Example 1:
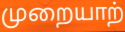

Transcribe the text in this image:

முறையாற்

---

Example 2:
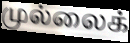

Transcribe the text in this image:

முல்லைக்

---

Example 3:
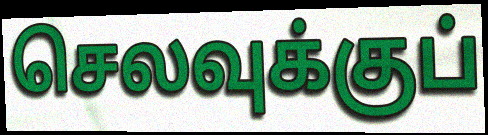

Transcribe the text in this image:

செலவுக்குப்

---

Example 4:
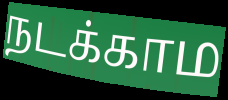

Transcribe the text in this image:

நடக்காம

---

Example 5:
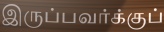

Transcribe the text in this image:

இருப்பவர்க்குப்